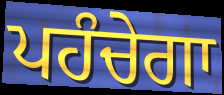
ਪਹੰਚੇਗਾ